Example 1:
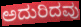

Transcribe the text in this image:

ಅದುರಿದವು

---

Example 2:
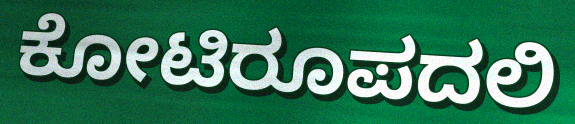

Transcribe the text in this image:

ಕೋಟಿರೂಪದಲಿ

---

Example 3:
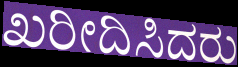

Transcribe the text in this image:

ಖರೀದಿಸಿದರು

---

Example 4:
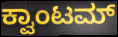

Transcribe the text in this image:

ಕ್ವಾಂಟಮ್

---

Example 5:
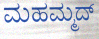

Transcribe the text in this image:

ಮಹಮ್ಮದ್